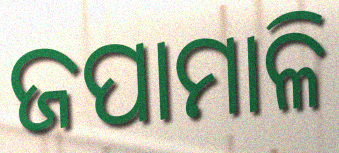
ଜପାମାଳି